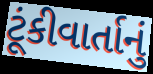
ટૂંકીવાર્તાનું